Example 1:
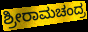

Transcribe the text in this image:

ಶ್ರೀರಾಮಚಂದ್ರ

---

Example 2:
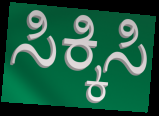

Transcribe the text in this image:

ಸಿಕ್ಕಿಸಿ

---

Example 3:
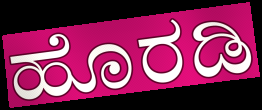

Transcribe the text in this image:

ಹೊರಡಿ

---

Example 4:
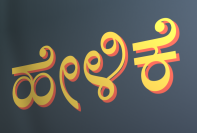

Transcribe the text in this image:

ಹೇಳಿಕೆ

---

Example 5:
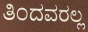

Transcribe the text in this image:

ತಿಂದವರಲ್ಲ